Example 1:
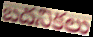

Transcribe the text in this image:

బదనికలు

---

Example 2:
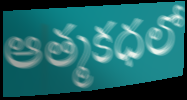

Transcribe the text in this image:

ఆత్మకధలో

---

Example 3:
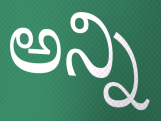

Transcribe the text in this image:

అన్ని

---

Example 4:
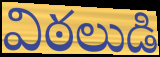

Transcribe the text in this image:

విఠలుడి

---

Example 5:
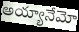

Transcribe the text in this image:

అయ్యానేమో